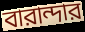
বারান্দার